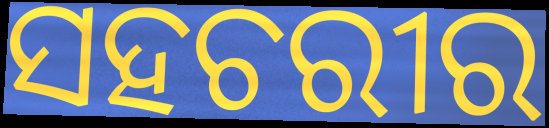
ସହଚରୀର